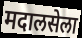
मदालसेला